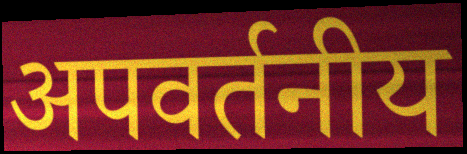
अपवर्तनीय